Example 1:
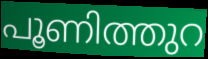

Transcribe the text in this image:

പൂണിത്തുറ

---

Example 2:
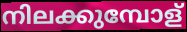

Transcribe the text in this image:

നിലക്കുമ്പോള്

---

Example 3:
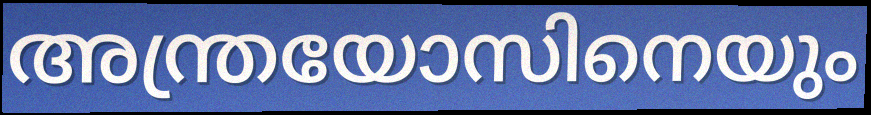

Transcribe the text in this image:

അന്ത്രയോസിനെയും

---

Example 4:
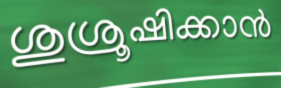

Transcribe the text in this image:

ശുശ്രൂഷിക്കാൻ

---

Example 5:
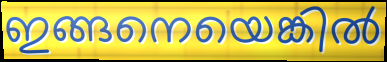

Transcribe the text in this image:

ഇങ്ങനെയെങ്കിൽ